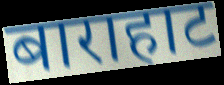
बाराहाट